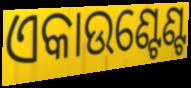
ଏକାଉଣ୍ଟେଣ୍ଟ